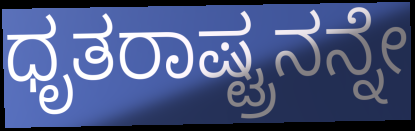
ಧೃತರಾಷ್ಟ್ರನನ್ನೇ